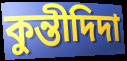
কুন্তীদিদা